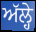
ਅੱਲ੍ਹੇ